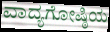
ವಾದ್ಯಗೋಷ್ಠಿಯ